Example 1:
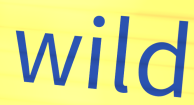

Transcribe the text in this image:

wild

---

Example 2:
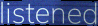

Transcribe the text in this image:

listened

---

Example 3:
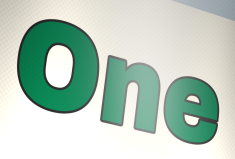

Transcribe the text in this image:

One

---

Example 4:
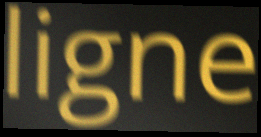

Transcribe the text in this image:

ligne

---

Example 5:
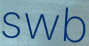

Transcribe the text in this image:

swb